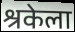
श्रकेला